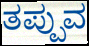
ತಪ್ಪುವ